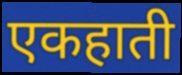
एकहाती